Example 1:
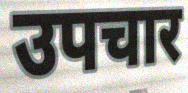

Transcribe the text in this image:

उपचार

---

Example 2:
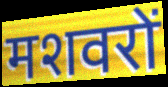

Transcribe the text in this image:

मशवरों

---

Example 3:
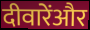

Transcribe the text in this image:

दीवारेंऔर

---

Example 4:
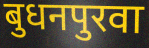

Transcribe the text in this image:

बुधनपुरवा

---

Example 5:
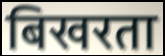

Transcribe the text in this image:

बिखरता